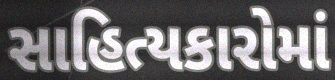
સાહિત્યકારોમાં